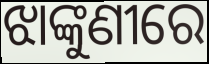
ଝାଙ୍କୁଣୀରେ